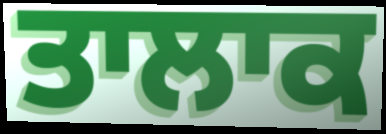
ਤਾਲਾਕ